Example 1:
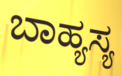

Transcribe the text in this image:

ಬಾಹ್ಯಸ್ಯ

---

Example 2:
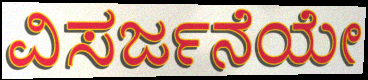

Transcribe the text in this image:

ವಿಸರ್ಜನೆಯೇ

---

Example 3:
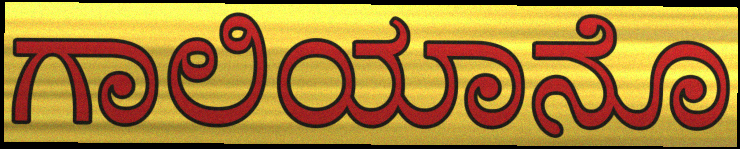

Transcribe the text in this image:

ಗಾಲಿಯಾನೊ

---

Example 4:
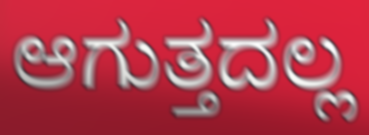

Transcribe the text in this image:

ಆಗುತ್ತದಲ್ಲ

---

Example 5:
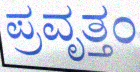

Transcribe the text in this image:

ಪ್ರವೃತ್ತಂ